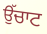
ਉੱਚਾਟ